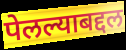
पेलल्याबद्दल